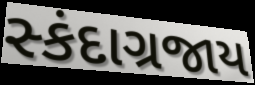
સ્કંદાગ્રજાય